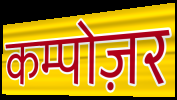
कम्पोज़र